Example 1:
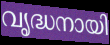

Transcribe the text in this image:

വൃദ്ധനായി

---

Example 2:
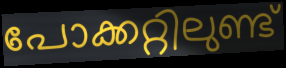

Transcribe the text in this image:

പോക്കറ്റിലുണ്ട്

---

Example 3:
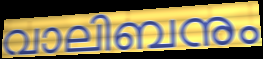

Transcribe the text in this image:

വാലിബനും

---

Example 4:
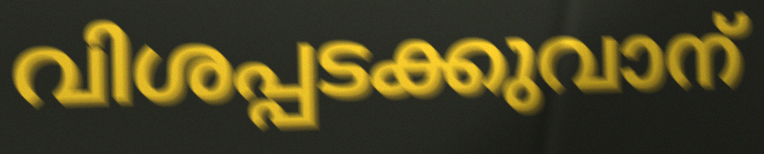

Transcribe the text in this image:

വിശപ്പടക്കുവാന്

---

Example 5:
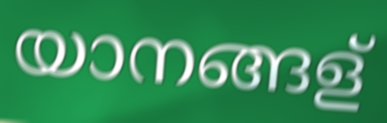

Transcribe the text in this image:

യാനങ്ങള്